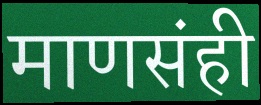
माणसंही